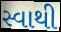
સ્વાથી